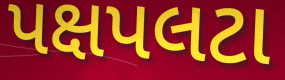
પક્ષપલટા